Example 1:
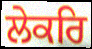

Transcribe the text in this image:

ਲੇਕਰਿ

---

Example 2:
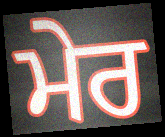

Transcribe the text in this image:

ਮੇਰ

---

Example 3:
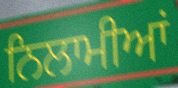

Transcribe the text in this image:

ਨਿਲਾਮੀਆਂ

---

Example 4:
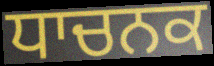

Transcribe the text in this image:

ਧਾਚਨਕ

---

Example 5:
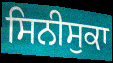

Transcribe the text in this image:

ਸਿਨੀਸੁਕਾ